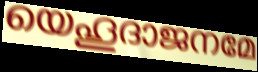
യെഹൂദാജനമേ